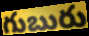
గుబురు